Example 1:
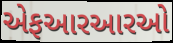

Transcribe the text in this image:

એફઆરઆરઓ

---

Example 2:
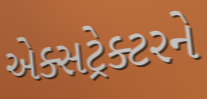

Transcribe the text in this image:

એક્સટ્રેક્ટરને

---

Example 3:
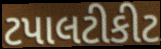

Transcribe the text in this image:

ટપાલટીકીટ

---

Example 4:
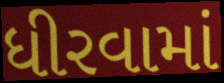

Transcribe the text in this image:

ધીરવામાં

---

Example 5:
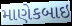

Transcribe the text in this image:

માણેકબાઇ